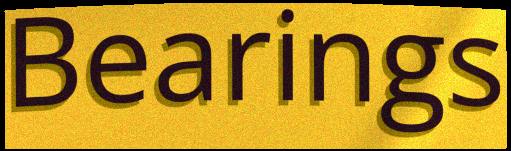
Bearings